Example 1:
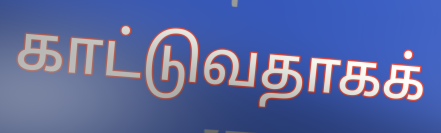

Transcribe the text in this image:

காட்டுவதாகக்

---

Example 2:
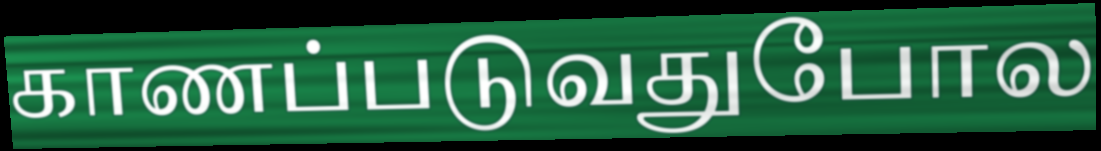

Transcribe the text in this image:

காணப்படுவதுபோல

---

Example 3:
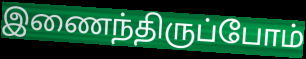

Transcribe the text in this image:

இணைந்திருப்போம்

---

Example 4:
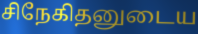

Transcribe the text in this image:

சிநேகிதனுடைய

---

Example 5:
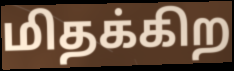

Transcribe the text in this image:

மிதக்கிற